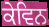
ਕੇਵਿਨ